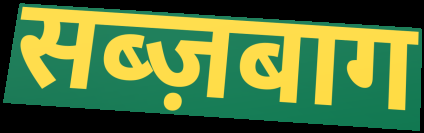
सब्ज़बाग